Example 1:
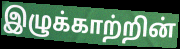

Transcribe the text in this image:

இழுக்காற்றின்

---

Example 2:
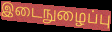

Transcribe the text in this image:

இடைநுழைப்பு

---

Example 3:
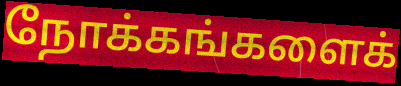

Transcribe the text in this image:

நோக்கங்களைக்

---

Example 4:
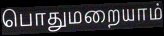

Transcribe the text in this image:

பொதுமறையாம்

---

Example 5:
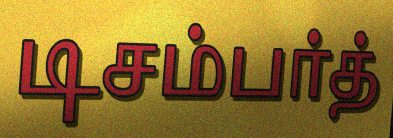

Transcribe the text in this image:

டிசம்பர்த்